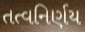
તત્વનિર્ણય